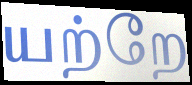
யற்றே